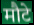
मौटे